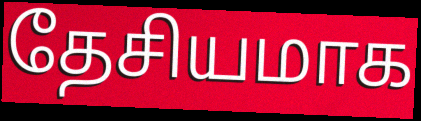
தேசியமாக